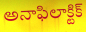
అనాఫిలాక్టిక్